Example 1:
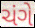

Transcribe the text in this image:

ચંગે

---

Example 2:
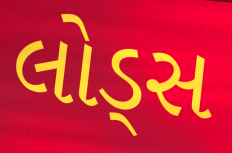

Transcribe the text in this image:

લોડ્સ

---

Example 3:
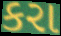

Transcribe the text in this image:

કરા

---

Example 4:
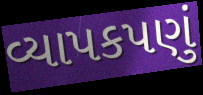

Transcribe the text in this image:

વ્યાપકપણું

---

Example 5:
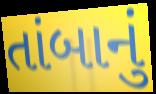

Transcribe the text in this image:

તાંબાનું